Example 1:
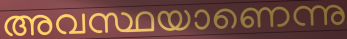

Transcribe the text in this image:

അവസ്ഥയാണെന്നു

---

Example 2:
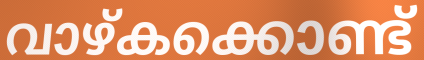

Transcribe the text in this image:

വാഴ്കക്കൊണ്ട്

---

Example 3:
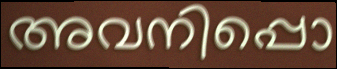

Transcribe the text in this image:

അവനിപ്പൊ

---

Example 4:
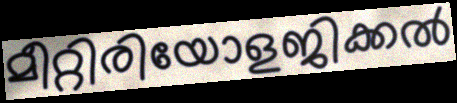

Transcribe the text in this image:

മീറ്റിരിയോളജിക്കൽ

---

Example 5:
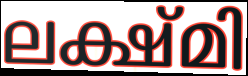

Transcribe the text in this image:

ലക്ഷ്‌മി